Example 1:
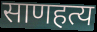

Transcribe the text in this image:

साणहत्य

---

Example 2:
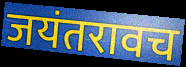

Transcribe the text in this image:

जयंतरावच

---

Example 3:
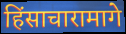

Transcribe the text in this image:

हिंसाचारामागे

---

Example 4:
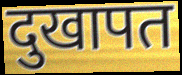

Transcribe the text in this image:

दुखापत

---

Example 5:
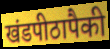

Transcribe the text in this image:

खंडपीठापैकी